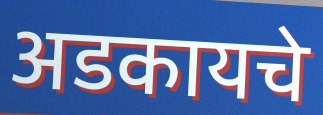
अडकायचे